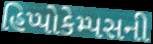
હિપ્પોકેમ્પસની